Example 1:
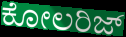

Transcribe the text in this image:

ಕೋಲರಿಜ್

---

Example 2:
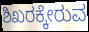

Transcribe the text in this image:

ಶಿಖರಕ್ಕೇರುವ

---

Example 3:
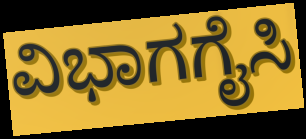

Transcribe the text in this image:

ವಿಭಾಗಗೈಸಿ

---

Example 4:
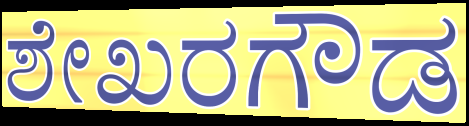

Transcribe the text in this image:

ಶೇಖರಗೌಡ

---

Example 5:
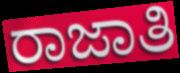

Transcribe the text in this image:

ರಾಜಾತಿ